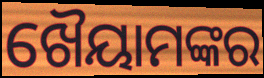
ଖୈୟାମଙ୍କର